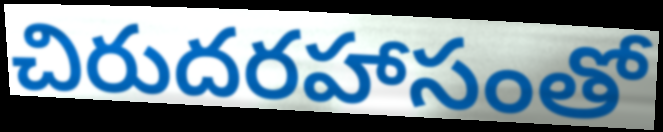
చిరుదరహాసంతో